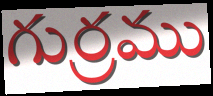
గుర్రము